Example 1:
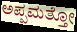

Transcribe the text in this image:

ಅಪ್ಪಮತ್ತೋ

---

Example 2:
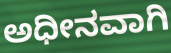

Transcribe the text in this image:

ಅಧೀನವಾಗಿ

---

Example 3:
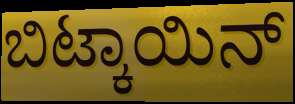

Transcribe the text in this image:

ಬಿಟ್ಕಾಯಿನ್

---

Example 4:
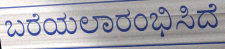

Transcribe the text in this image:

ಬರೆಯಲಾರಂಭಿಸಿದೆ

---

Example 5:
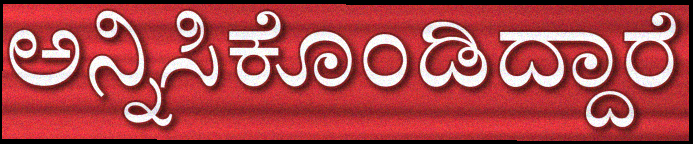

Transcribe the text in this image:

ಅನ್ನಿಸಿಕೊಂಡಿದ್ದಾರೆ